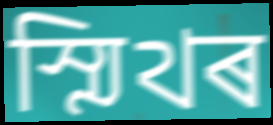
স্মিথৰ